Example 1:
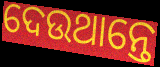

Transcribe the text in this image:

ଦେଉଥାନ୍ତେ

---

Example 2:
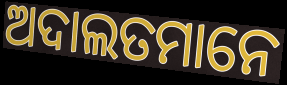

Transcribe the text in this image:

ଅଦାଲତମାନେ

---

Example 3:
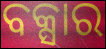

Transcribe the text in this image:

ବକ୍ସାର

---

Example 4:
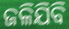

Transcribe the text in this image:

ଜଳିଯିବି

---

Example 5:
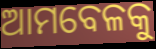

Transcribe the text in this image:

ଆମବେଳକୁ